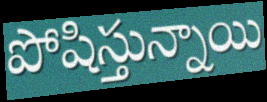
పోషిస్తున్నాయి